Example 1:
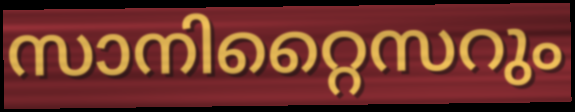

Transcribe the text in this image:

സാനിറ്റൈസറും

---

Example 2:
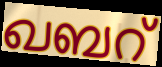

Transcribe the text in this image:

ഖബറ്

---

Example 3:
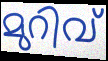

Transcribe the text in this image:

മുറിവ്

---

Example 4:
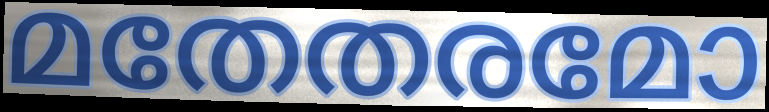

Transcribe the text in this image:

മതേതരമോ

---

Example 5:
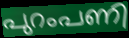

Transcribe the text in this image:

പുറംപണി